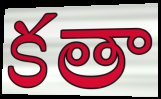
కతా